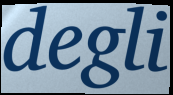
degli